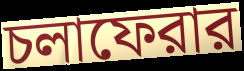
চলাফেরার